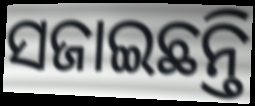
ସଜାଇଛନ୍ତି